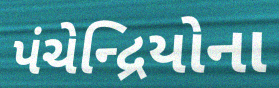
પંચેન્દ્રિયોના